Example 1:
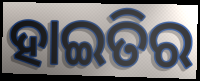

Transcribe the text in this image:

ହାଇତିର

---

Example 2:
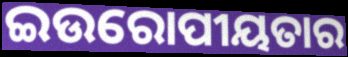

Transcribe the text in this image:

ଇଉରୋପୀୟତାର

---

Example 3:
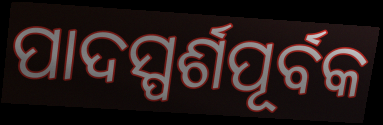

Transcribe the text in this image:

ପାଦସ୍ପର୍ଶପୂର୍ବକ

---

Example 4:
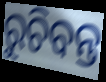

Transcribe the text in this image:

ରୁଚିବନ୍ତ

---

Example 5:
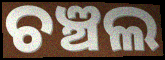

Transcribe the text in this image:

ଚଞ୍ଚଲ